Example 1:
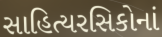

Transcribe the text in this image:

સાહિત્યરસિકોનાં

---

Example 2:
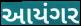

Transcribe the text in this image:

આયંગર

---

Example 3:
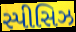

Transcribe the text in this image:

સ્પીસિઝ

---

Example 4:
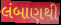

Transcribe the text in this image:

લંબાણથી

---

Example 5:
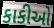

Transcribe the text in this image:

કાકીઓ